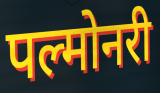
पल्मोनरी